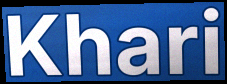
Khari